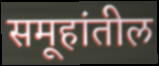
समूहांतील